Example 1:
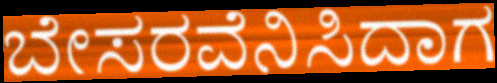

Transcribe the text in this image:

ಬೇಸರವೆನಿಸಿದಾಗ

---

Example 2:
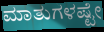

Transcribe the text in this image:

ಮಾತುಗಳಷ್ಟೇ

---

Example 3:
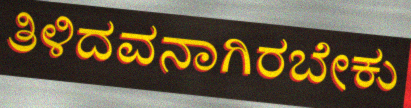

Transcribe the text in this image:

ತಿಳಿದವನಾಗಿರಬೇಕು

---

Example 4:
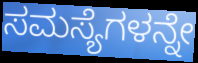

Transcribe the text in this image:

ಸಮಸ್ಯೆಗಳನ್ನೇ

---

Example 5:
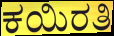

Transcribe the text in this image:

ಕಯಿರತಿ